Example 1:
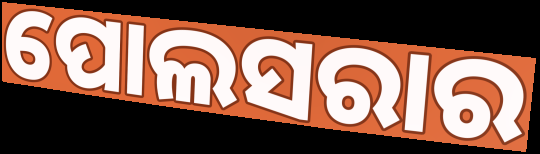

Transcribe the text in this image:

ପୋଲସରାର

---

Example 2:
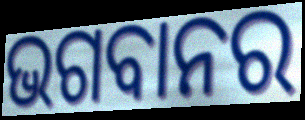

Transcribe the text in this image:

ଭଗବାନର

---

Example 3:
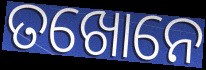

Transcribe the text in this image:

ତଖୋନେ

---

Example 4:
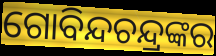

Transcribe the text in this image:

ଗୋବିନ୍ଦଚନ୍ଦ୍ରଙ୍କର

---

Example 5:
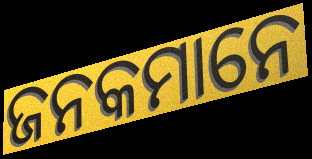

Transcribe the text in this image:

ଜନକମାନେ